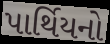
પાર્થિયનો